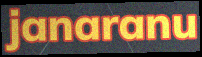
janaranu